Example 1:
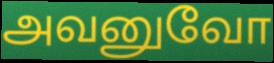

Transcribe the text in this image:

அவனுவோ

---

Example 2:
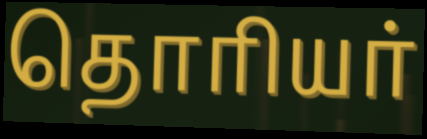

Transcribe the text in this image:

தொரியர்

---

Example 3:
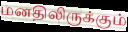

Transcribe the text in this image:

மனதிலிருக்கும்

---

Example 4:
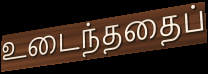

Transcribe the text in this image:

உடைந்ததைப்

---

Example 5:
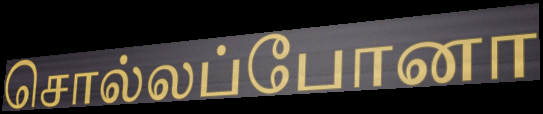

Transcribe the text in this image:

சொல்லப்போனா